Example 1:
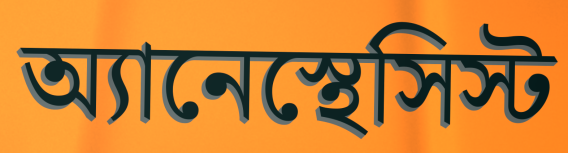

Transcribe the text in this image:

অ্যানেস্থেসিস্ট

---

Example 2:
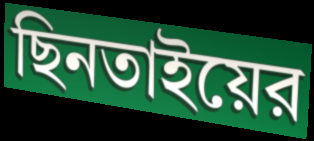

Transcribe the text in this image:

ছিনতাইয়ের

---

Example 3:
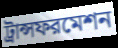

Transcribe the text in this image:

ট্রান্সফরমেশন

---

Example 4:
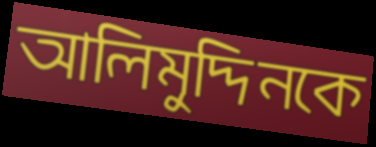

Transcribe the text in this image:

আলিমুদ্দিনকে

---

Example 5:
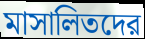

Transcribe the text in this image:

মাসালিতদের